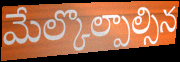
మేల్కొల్పాల్సిన